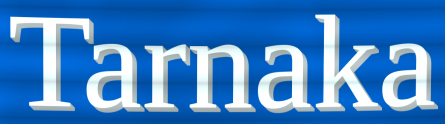
Tarnaka